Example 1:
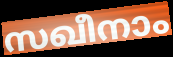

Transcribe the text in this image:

സഖീനാം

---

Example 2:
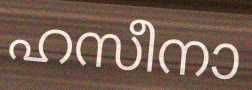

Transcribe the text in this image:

ഹസീനാ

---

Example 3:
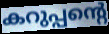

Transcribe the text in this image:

കറുപ്പന്റെ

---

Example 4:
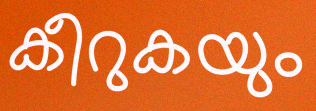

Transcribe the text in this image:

കീറുകയും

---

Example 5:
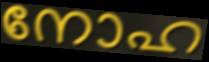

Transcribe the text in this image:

നോഹ